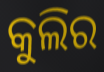
କୁଲିର